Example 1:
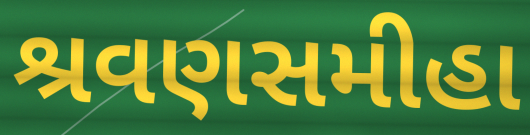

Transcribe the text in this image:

શ્રવણસમીહા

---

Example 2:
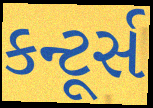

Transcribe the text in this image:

કન્ટૂર્સ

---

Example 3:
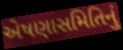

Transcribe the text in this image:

એષણાસમિતિનું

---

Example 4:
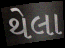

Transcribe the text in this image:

થેલા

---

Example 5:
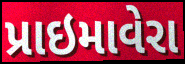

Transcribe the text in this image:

પ્રાઇમાવેરા